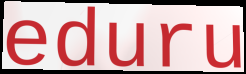
eduru